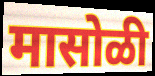
मासोळी